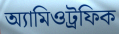
অ্যামিওট্রফিক